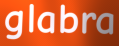
glabra